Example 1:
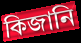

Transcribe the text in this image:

কিজানি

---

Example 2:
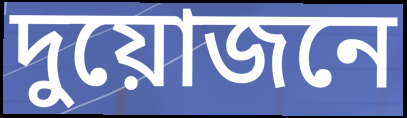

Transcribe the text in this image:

দুয়োজনে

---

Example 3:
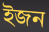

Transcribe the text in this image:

ইজন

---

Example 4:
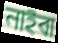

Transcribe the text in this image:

নাইবা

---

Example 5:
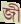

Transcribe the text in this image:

জী